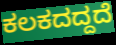
ಕಲಕದದ್ದದೆ